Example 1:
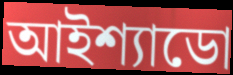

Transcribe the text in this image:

আইশ্যাডো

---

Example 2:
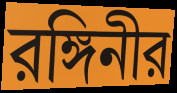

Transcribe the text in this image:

রঙ্গিনীর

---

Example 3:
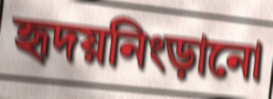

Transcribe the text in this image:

হৃদয়নিংড়ানো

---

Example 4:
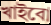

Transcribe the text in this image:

খাইবো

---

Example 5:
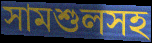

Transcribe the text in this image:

সামশুলসহ